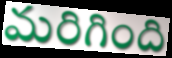
మరిగింది